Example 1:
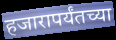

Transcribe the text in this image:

हजारापर्यंतच्या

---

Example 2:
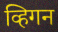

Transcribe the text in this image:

व्हिगन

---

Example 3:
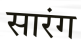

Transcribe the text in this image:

सारंग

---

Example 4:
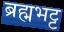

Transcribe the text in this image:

ब्रह्मभट्ट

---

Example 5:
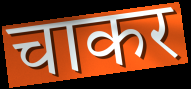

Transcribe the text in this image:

चाकर